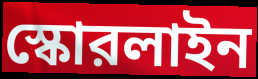
স্কোরলাইন